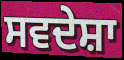
ਸਵਦੇਸ਼ਾ